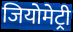
जियोमेट्री